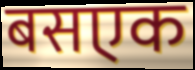
बसएक